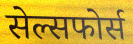
सेल्सफोर्स